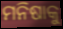
ମନିଷାକୁ